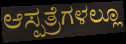
ಆಸ್ಪತ್ರೆಗಳಲ್ಲೂ